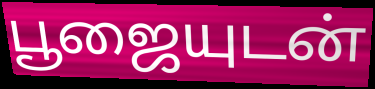
பூஜையுடன்